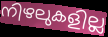
നിഴലുകളില്ല